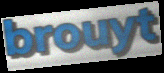
brouyt